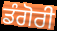
ਡੰਗੋਰੀ